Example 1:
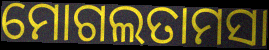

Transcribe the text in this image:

ମୋଗଲତାମସା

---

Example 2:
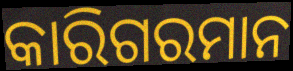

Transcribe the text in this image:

କାରିଗରମାନ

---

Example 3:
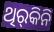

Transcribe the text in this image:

ଥିର୍‍କିନି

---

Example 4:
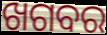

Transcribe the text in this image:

ଖଗବର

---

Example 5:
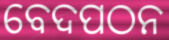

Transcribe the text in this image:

ବେଦପଠନ